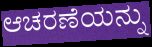
ಆಚರಣೆಯನ್ನು